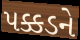
પક્કડને